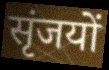
सृंजयों